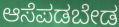
ಆಸೆಪಡಬೇಡ